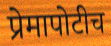
प्रेमापोटीच